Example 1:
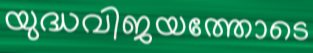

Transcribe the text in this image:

യുദ്ധവിജയത്തോടെ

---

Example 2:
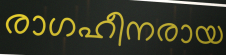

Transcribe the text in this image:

രാഗഹീനരായ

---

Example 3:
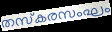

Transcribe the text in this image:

തസ്കരസംഘം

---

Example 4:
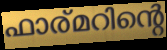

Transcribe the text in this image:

ഫാര്മറിന്റെ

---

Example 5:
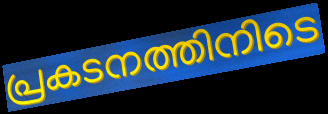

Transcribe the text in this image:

പ്രകടനത്തിനിടെ